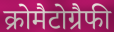
क्रोमैटोग्रैफी